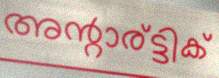
അന്റാര്ട്ടിക്